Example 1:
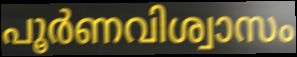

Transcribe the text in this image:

പൂർണവിശ്വാസം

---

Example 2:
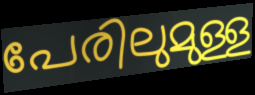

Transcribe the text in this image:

പേരിലുമുള്ള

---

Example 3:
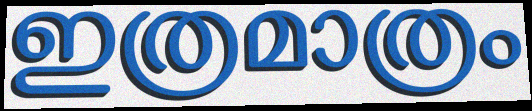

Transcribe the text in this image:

ഇത്രമാത്രം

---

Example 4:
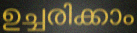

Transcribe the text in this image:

ഉച്ചരിക്കാം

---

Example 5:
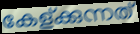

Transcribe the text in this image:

കേള്ക്കുന്നത്